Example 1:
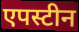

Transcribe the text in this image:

एपस्टीन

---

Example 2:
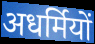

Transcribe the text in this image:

अधर्मियों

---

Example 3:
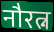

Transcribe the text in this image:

नौरत्न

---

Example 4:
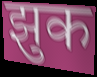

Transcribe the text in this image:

झुक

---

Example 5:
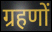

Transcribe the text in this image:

ग्रहणों